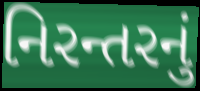
નિરન્તરનું